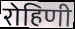
रोहिणी